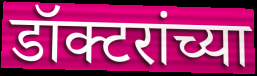
डॉक्टरांच्या